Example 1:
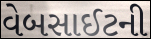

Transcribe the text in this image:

વેબસાઈટની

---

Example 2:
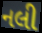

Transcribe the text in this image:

નલી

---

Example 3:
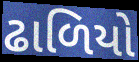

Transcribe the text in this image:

ઢાળિયો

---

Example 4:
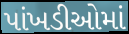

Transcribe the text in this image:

પાંખડીઓમાં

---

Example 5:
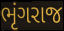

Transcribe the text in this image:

ભૃંગરાજ